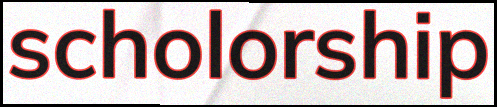
scholorship